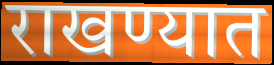
राखण्यात